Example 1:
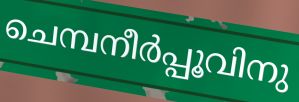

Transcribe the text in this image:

ചെമ്പനീർപ്പൂവിനു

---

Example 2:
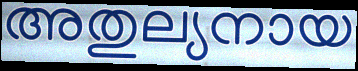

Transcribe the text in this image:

അതുല്യനായ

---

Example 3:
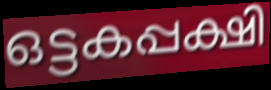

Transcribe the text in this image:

ഒട്ടകപ്പക്ഷി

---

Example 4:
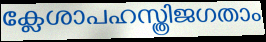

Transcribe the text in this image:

ക്ലേശാപഹസ്ത്രിജഗതാം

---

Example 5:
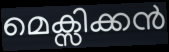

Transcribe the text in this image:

മെക്സിക്കൻ